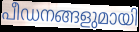
പീഡനങ്ങളുമായി